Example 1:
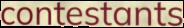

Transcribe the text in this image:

contestants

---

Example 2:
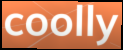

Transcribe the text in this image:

coolly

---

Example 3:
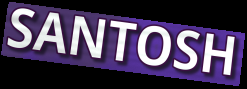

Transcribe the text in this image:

SANTOSH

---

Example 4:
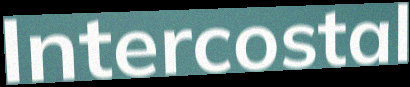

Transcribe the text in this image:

Intercostal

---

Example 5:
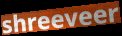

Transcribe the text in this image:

shreeveer